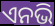
ଏନଭି